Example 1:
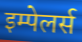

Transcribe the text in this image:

इम्पेलर्स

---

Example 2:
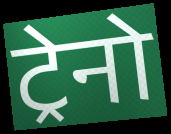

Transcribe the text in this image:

ट्रेनो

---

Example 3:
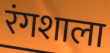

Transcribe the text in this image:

रंगशाला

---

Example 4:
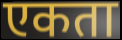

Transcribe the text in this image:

एकता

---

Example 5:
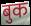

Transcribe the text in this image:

बुक